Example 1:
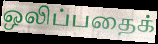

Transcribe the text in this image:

ஒலிப்பதைக்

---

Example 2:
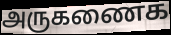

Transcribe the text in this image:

அருகணைக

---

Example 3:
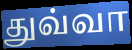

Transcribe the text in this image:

துவ்வா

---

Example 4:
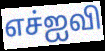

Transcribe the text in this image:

எச்ஐவி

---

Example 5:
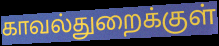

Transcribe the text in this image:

காவல்துறைக்குள்